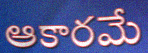
ఆకారమే